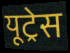
यूट्रेस